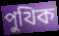
পুথিক